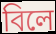
বিলে